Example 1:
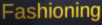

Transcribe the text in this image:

Fashioning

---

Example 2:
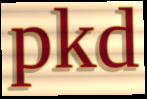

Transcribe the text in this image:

pkd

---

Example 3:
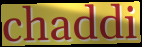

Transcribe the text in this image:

chaddi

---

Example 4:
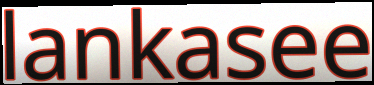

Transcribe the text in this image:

lankasee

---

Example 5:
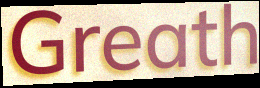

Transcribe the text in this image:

Greath